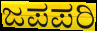
ಜಪಪರಿ